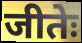
जीतेः